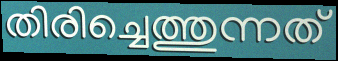
തിരിച്ചെത്തുന്നത്